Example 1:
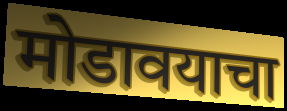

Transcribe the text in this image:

मोडावयाचा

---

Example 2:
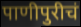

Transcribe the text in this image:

पाणीपुरीचं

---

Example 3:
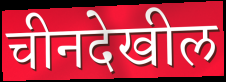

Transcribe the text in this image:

चीनदेखील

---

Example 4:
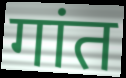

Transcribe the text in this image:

गांत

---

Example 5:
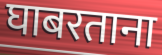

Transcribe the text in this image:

घाबरताना